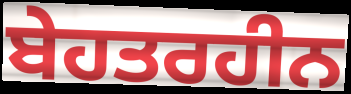
ਬੇਹਤਰਹੀਨ